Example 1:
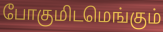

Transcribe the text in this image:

போகுமிடமெங்கும்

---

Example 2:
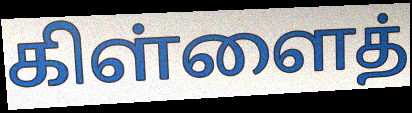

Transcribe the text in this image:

கிள்ளைத்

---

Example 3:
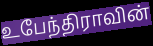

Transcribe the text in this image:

உபேந்திராவின்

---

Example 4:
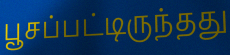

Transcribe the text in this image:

பூசப்பட்டிருந்தது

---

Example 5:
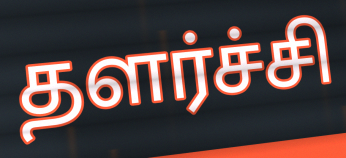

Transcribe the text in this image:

தளர்ச்சி